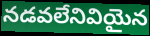
నడవలేనివియైన